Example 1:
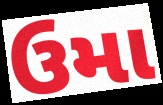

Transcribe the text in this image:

ઉમા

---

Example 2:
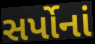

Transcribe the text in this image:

સર્પોનાં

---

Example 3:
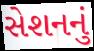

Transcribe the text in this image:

સેશનનું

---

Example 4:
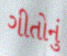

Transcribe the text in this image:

ગીતોનું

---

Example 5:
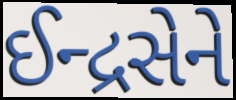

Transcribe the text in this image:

ઈન્દ્રસેને